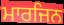
ਮਾਰਜਿਨ